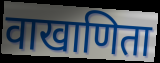
वाखाणिता